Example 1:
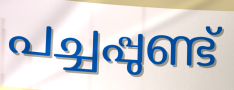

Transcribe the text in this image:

പച്ചപ്പുണ്ട്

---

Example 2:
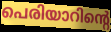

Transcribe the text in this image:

പെരിയാറിന്റെ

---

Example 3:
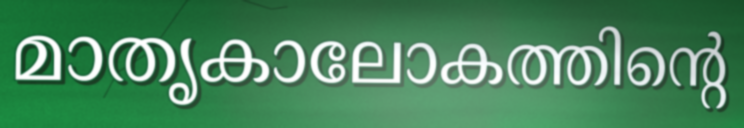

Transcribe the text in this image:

മാതൃകാലോകത്തിന്റെ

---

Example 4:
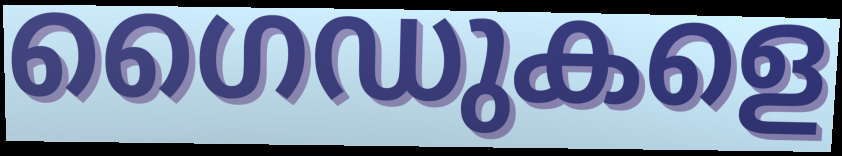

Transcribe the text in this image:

ഗൈഡുകളെ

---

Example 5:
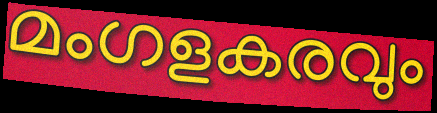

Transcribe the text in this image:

മംഗളകരവും